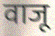
वाजू